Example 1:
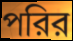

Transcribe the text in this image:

পরির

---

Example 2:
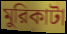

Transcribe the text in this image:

মুরিকাটা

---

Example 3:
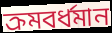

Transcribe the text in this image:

ক্রমবর্ধমান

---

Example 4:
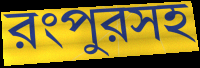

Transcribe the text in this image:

রংপুরসহ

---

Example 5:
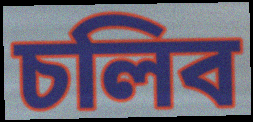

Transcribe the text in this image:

চলিব